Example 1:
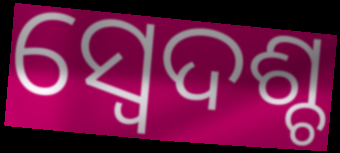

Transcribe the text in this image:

ସ୍ବେଦଶ୍ଚ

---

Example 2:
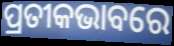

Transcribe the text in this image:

ପ୍ରତୀକଭାବରେ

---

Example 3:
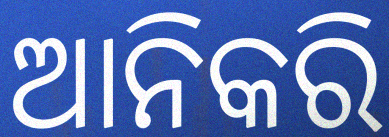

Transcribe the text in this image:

ଆନିକରି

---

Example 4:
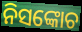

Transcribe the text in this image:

ନିସଙ୍କୋଚ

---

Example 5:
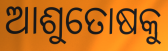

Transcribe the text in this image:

ଆଶୁତୋଷକୁ